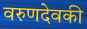
वरुणदेवकी